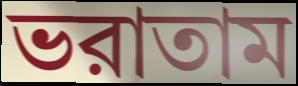
ভরাতাম